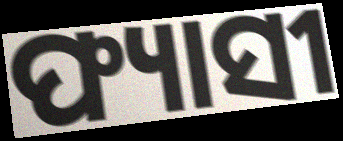
ଫ୍ୟାସୀ